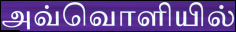
அவ்வொளியில்